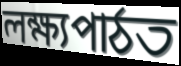
লক্ষ্যপাঠত